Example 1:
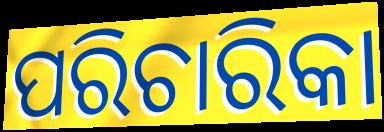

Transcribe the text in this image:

ପରିଚାରିକା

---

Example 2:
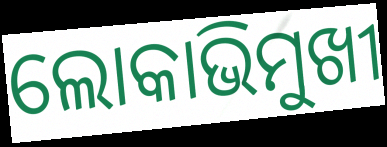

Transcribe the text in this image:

ଲୋକାଭିମୁଖୀ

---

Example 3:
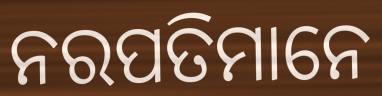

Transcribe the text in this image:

ନରପତିମାନେ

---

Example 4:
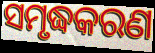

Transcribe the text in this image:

ସମୃଦ୍ଧକରଣ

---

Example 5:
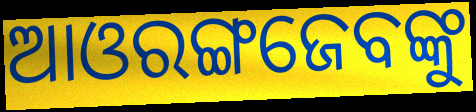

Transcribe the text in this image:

ଆଓରଙ୍ଗଜେବଙ୍କୁ